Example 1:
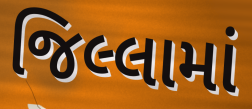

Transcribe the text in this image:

જિલ્લામાં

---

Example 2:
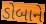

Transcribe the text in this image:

ડોબાને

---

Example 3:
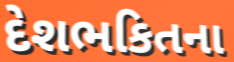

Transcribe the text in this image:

દેશભકિતના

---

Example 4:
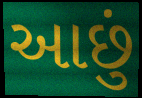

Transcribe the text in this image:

આછું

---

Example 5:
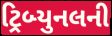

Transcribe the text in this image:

ટ્રિબ્યુનલની